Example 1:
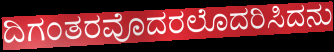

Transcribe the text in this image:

ದಿಗಂತರವೊದರಲೊದರಿಸಿದನು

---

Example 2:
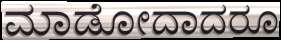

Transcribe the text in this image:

ಮಾಡೋದಾದರೂ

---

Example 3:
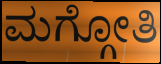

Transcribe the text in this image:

ಮಗ್ಗೋತಿ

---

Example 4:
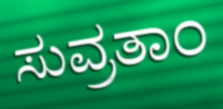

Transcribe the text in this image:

ಸುವ್ರತಾಂ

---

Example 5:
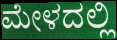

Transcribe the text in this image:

ಮೇಳದಲ್ಲಿ